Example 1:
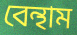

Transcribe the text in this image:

বেন্থাম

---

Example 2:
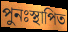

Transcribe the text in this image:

পুনঃস্থাপিত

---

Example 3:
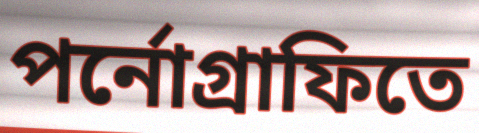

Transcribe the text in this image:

পর্নোগ্রাফিতে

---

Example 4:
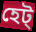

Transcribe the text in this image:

হেট্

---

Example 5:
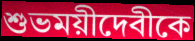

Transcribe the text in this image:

শুভময়ীদেবীকে